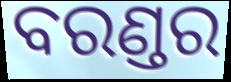
ବରଣ୍ଡର